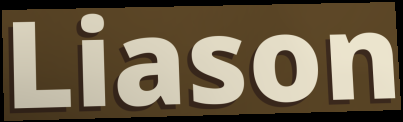
Liason